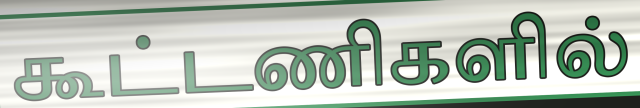
கூட்டணிகளில்